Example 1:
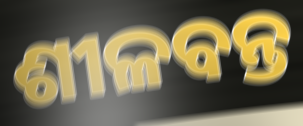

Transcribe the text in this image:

ଶୀଳବନ୍ତ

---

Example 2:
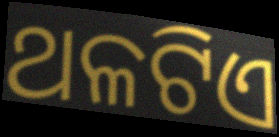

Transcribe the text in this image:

ଥଳଟିଏ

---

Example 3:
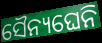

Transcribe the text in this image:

ସୈନ୍ୟଘେନି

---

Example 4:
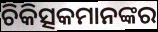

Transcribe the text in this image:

ଚିକିତ୍ସକମାନଙ୍କର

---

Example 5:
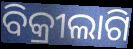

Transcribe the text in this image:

ବିକ୍ରୀଲାଗି